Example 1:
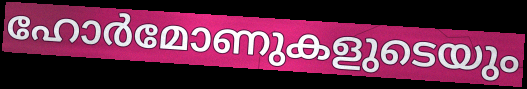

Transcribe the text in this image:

ഹോർമോണുകളുടെയും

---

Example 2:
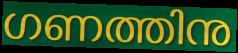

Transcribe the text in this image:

ഗണത്തിനു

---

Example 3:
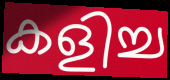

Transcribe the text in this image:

കളിച്ച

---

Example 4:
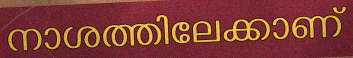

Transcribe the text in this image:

നാശത്തിലേക്കാണ്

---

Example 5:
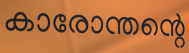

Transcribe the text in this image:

കാരോന്തന്റെ